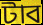
টাব